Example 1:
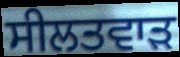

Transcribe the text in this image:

ਸੀਲਤਵਾੜ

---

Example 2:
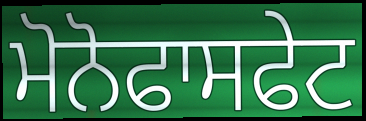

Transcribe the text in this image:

ਮੋਨੋਫਾਸਫੇਟ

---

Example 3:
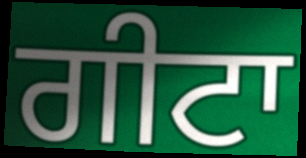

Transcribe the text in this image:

ਗੀਟਾ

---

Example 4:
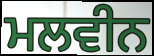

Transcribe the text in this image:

ਮਲਵੀਨ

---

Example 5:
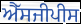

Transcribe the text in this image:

ਐੱਸਜੀਪੀਸ